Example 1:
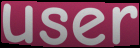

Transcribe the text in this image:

user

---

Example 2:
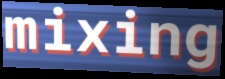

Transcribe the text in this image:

mixing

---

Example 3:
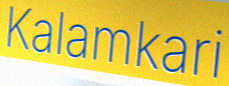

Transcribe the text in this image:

Kalamkari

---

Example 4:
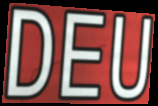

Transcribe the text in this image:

DEU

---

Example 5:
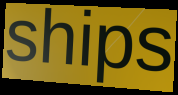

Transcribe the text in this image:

ships